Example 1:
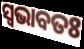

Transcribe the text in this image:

ସ୍ଵଭାବତଃ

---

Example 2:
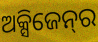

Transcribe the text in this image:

ଅକ୍ସିଜେନ୍‌ର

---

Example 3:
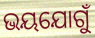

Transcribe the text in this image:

ଭୟଯୋଗୁଁ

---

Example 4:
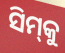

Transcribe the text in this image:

ସିମ୍‌କୁ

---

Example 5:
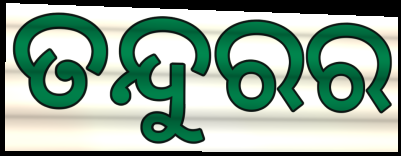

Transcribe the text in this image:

ତନ୍ଦୁରର